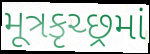
મૂત્રકૃચ્છ્રમાં